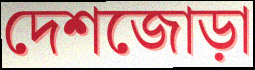
দেশজোড়া